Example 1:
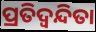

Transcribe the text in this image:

ପ୍ରତିଦ୍ଵନ୍ଦିତା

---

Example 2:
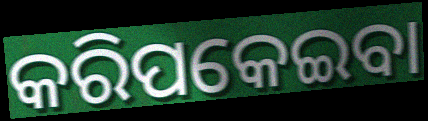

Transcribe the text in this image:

କରିପକେଇବା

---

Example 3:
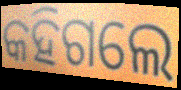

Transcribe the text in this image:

କହିଗଲେ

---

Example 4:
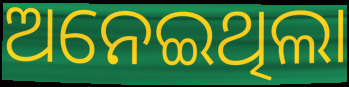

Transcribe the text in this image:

ଅନେଇଥିଲା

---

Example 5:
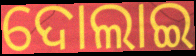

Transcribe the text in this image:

ଦୋଲାଇ